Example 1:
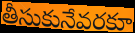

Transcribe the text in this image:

తీసుకునేవరకూ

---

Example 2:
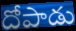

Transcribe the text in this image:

దోపాడు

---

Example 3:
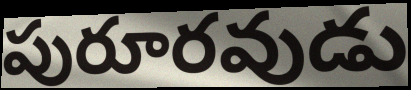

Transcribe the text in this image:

పురూరవుడు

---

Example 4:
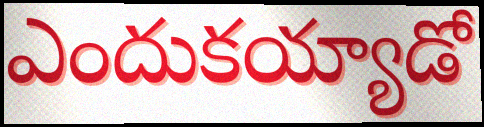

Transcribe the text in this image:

ఎందుకయ్యాడో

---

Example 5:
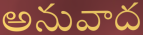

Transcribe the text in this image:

అనువాద